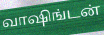
வாஷிங்டன்